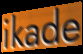
ikade